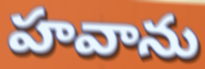
హవాను